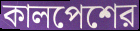
কালপেশের